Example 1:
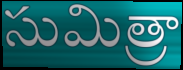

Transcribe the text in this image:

సుమిత్రా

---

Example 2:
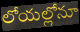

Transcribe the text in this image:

లోయల్లోనూ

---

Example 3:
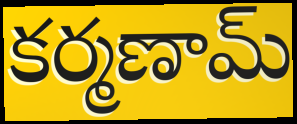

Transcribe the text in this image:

కర్మణామ్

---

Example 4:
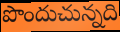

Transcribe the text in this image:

పొందుచున్నది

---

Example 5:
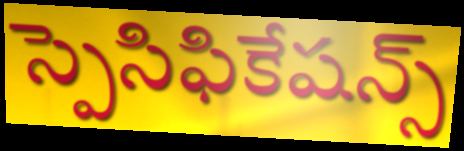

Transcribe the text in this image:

స్పెసిఫికేషన్స్